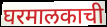
घरमालकाची